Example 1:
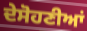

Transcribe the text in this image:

ਦੇਸੋਹਣੀਆਂ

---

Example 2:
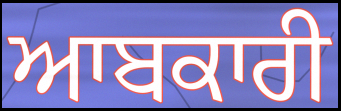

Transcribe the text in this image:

ਆਬਕਾਰੀ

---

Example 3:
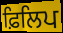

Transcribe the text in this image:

ਫ਼ਿਲਿਪ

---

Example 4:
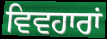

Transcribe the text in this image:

ਵਿਵਹਾਰਾਂ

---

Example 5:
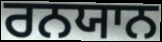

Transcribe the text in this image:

ਰਨਯਾਨ